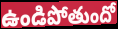
ఉండిపోతుందో